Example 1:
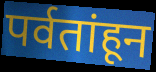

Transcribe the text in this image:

पर्वतांहून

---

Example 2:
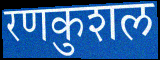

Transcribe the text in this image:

रणकुशल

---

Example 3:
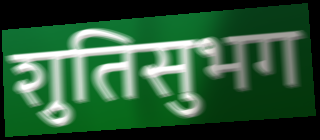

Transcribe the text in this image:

श्रुतिसुभग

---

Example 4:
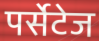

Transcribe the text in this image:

पर्सेटेज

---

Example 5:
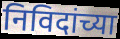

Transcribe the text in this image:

निविदांच्या